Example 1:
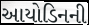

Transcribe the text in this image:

આયોડિનની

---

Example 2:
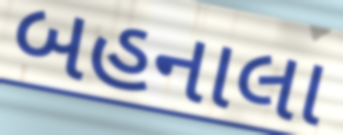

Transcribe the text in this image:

બહનાલા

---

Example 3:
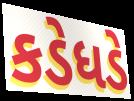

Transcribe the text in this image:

કડેધડે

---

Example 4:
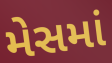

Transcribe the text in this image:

મેસમાં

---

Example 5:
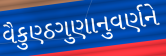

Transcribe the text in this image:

વૈકુણ્ઠગુણાનુવર્ણને